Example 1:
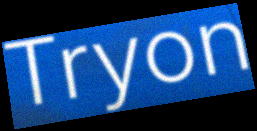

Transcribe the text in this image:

Tryon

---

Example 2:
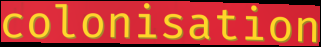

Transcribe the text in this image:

colonisation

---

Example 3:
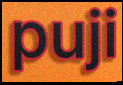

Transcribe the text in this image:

puji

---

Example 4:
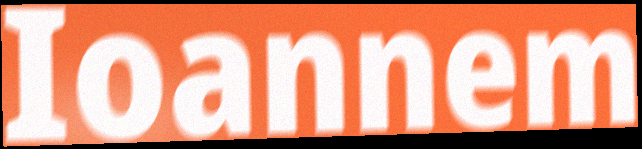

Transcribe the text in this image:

Ioannem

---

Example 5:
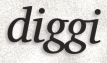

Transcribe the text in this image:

diggi